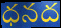
ధనద